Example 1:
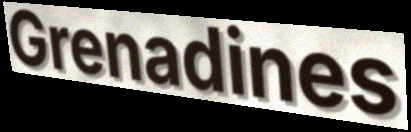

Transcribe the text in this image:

Grenadines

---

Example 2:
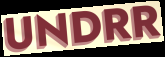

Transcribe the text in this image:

UNDRR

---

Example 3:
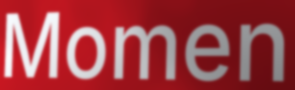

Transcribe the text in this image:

Momen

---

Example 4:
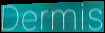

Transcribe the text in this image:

Dermis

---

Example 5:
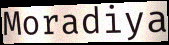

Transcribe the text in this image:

Moradiya